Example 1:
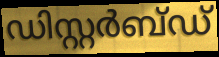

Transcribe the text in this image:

ഡിസ്റ്റർബ്ഡ്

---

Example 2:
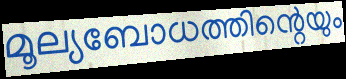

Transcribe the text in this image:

മൂല്യബോധത്തിന്റെയും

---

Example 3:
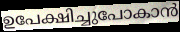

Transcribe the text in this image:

ഉപേക്ഷിച്ചുപോകാൻ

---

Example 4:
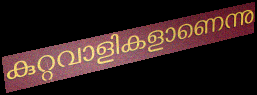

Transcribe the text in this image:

കുറ്റവാളികളാണെന്നു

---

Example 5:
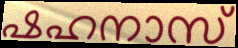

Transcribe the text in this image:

ഷഹനാസ്